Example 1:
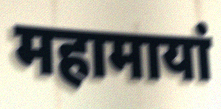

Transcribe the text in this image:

महामायां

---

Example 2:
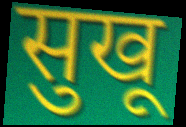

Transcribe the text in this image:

सुखू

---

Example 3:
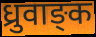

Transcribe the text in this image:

ध्रुवाङ्क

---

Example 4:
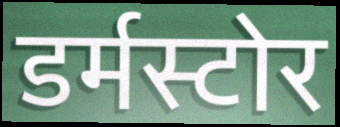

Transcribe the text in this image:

डर्मस्टोर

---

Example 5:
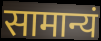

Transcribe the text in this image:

सामान्यं